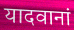
यादवानां